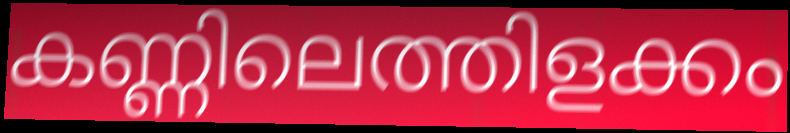
കണ്ണിലെത്തിളക്കം